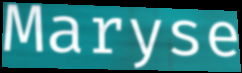
Maryse